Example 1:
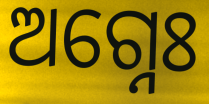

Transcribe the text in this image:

ଅଗ୍ନେଃ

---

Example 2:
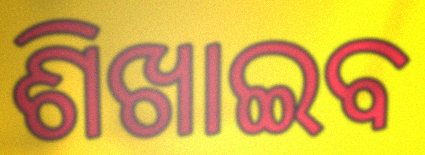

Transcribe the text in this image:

ଶିଖାଇବ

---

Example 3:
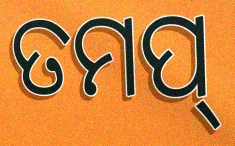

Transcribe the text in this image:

ତମପ୍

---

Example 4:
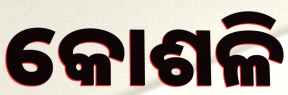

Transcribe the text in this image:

କୋଶଳି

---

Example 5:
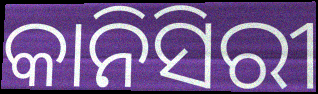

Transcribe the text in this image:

କାନିସିରୀ